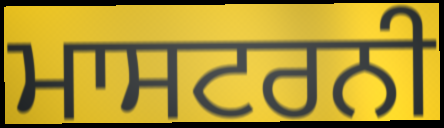
ਮਾਸਟਰਨੀ